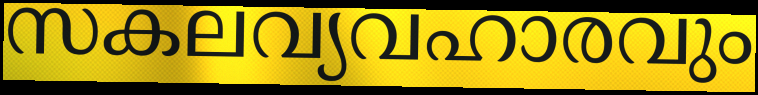
സകലവ്യവഹാരവും